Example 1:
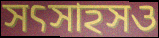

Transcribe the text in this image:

সৎসাহসও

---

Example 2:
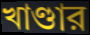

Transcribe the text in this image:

খাণ্ডার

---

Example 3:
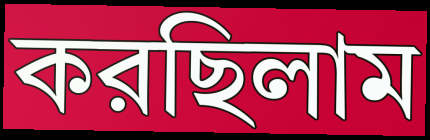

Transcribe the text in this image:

করছিলাম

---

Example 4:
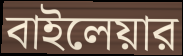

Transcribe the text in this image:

বাইলেয়ার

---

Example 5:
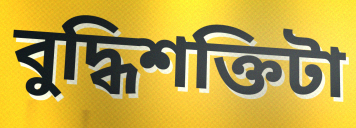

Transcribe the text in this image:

বুদ্ধিশক্তিটা